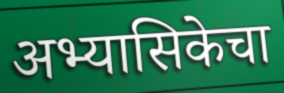
अभ्यासिकेचा